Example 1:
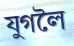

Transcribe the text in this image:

যুগলৈ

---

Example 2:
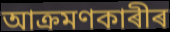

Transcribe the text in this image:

আক্ৰমণকাৰীৰ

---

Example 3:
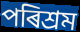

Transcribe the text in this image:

পৰিশ্ৰম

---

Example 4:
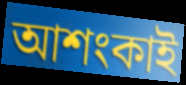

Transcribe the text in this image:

আশংকাই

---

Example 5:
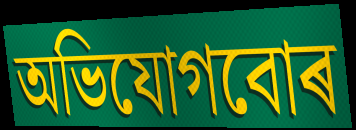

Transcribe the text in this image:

অভিযোগবোৰ